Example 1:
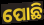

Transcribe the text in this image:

ପୋଛି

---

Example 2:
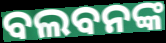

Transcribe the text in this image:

ବଲବନଙ୍କ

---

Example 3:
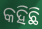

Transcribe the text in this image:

କହିଛି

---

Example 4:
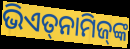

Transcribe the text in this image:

ଭିଏତ୍‌ନାମିଜ୍‌ଙ୍କ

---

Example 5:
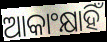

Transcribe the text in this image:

ଆକାଂକ୍ଷାହିଁ